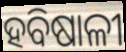
ହବିଷାଳୀ